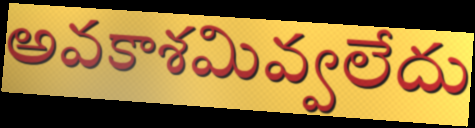
అవకాశమివ్వలేదు